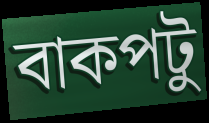
বাকপটু